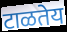
टाळतेय